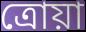
ত্রোয়া